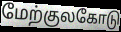
மேற்குலகோடு